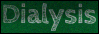
Dialysis